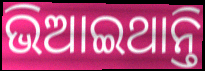
ଭିଆଇଥାନ୍ତି